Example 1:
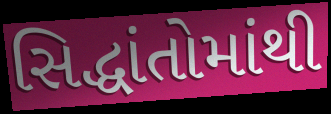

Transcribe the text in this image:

સિદ્ધાંતોમાંથી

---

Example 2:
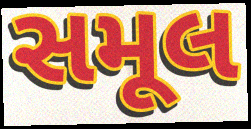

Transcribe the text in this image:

સમૂલ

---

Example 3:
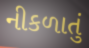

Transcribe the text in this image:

નીકળાતું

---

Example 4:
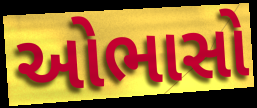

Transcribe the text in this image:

ઓભાસો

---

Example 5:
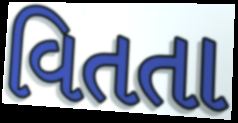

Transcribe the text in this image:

વિતતા